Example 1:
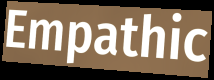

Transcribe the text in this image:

Empathic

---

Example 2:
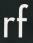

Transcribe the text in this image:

rf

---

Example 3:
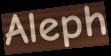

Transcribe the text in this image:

Aleph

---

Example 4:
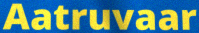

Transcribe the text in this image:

Aatruvaar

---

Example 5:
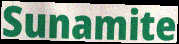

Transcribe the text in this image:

Sunamite